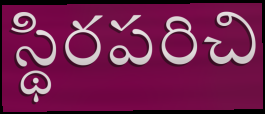
స్థిరపరిచి